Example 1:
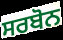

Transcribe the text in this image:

ਸਰਬੋਨ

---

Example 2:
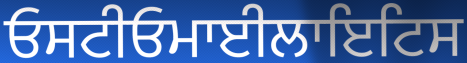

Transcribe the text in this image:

ਓਸਟੀਓਮਾਈਲਾਇਟਿਸ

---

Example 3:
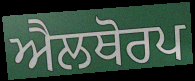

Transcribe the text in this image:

ਐਲਥੋਰਪ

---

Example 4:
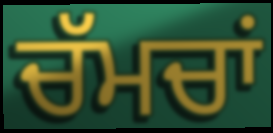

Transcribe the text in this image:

ਚੱਮਚਾਂ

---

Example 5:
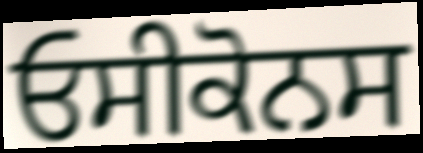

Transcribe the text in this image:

ਓਸੀਕੋਨਸ